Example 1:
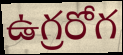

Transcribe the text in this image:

ఉగ్రరోగ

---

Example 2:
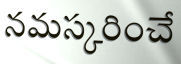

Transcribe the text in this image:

నమస్కరించే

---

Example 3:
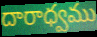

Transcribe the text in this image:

దారాధ్వము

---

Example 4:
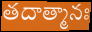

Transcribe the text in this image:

తదాత్మానః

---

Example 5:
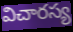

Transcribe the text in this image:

విచారస్య